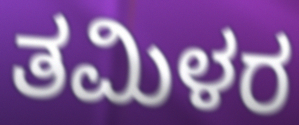
ತಮಿಳರ